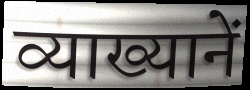
व्याख्यानें